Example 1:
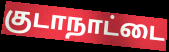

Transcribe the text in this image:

குடாநாட்டை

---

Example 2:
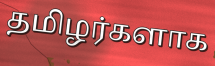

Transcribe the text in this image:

தமிழர்களாக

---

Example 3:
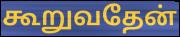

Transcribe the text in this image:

கூறுவதேன்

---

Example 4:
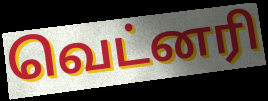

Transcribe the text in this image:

வெட்னரி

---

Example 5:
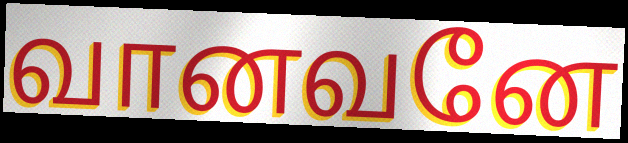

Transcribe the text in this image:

வானவனே